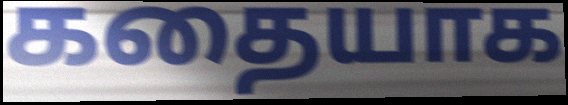
கதையாக